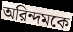
অরিন্দমকে